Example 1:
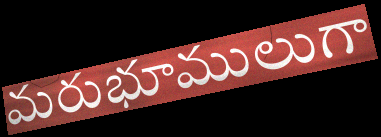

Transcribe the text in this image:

మరుభూములుగా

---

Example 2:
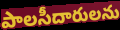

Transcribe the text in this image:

పాలసీదారులను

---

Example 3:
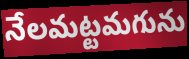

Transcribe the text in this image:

నేలమట్టమగును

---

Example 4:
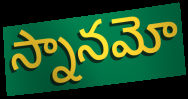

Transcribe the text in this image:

స్నానమో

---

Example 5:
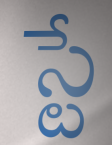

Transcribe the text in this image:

స్టే